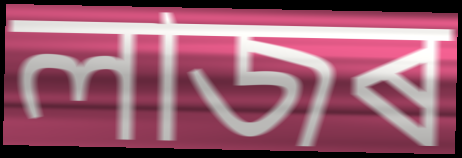
লাজৰ